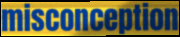
misconception